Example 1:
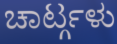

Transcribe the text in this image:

ಚಾರ್ಟ್ಗಳು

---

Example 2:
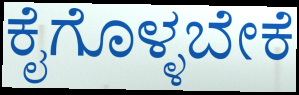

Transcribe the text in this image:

ಕೈಗೊಳ್ಳಬೇಕೆ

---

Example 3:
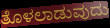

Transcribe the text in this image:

ತೊಳಲಾಡುವುದು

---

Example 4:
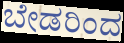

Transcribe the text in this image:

ಬೇಡರಿಂದ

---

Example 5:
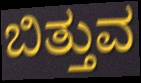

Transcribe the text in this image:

ಬಿತ್ತುವ